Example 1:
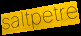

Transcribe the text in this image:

saltpetre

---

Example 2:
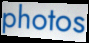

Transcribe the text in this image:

photos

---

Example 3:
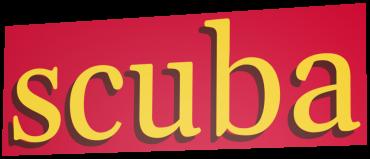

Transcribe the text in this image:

scuba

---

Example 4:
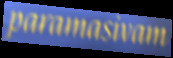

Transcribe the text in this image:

paramasivam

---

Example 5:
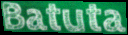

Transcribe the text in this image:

Batuta